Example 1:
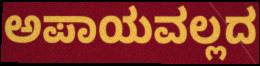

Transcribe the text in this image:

ಅಪಾಯವಲ್ಲದ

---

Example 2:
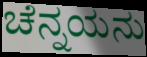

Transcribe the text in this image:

ಚೆನ್ನಯನು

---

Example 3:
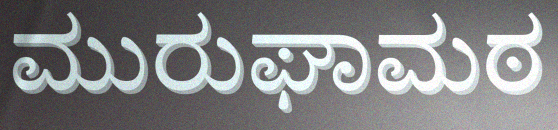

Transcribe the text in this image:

ಮುರುಘಾಮಠ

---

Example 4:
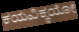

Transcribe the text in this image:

ಕಯವಿಕ್ಕಯೋ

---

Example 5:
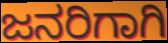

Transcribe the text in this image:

ಜನರಿಗಾಗಿ